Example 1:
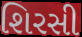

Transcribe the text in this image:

શિરસી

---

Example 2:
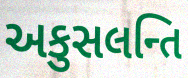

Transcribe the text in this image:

અકુસલન્તિ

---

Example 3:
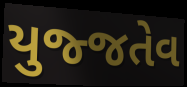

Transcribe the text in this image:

યુજ્જતેવ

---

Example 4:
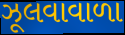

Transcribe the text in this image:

ઝૂલવાવાળા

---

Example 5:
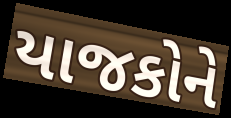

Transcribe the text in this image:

યાજકોને